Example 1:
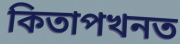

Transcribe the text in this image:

কিতাপখনত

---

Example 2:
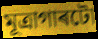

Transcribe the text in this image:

মূত্ৰাগাৰটো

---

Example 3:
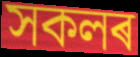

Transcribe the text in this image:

সকলৰ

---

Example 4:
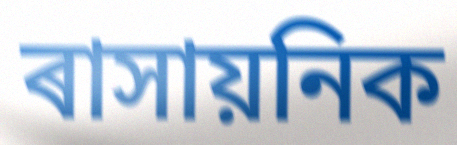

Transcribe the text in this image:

ৰাসায়নিক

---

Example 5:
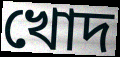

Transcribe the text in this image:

খোদ